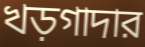
খড়গাদার